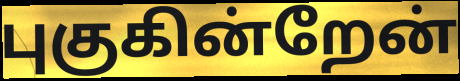
புகுகின்றேன்